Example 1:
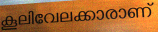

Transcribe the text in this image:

കൂലിവേലക്കാരാണ്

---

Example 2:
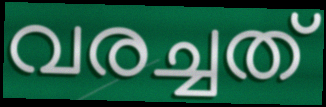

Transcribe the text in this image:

വരച്ചത്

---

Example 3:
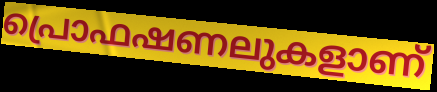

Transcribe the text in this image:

പ്രൊഫഷണലുകളാണ്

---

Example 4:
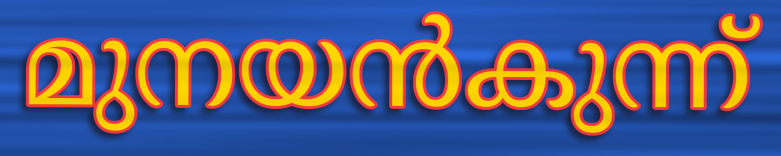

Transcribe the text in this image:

മുനയൻകുന്ന്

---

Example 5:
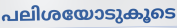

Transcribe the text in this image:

പലിശയോടുകൂടെ